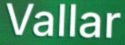
Vallar